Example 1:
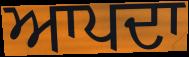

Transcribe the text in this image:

ਆਪਦਾ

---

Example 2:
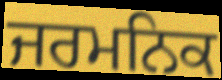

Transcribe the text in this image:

ਜਰਮਨਿਕ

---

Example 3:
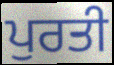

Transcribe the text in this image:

ਪੁਰਤੀ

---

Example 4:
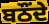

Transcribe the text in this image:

ਬਠੌਂਦੇ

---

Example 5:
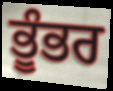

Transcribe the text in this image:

ਭੂੰਭਰ